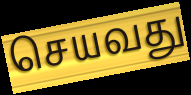
செயவது